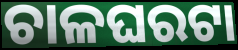
ଚାଳଘରଟା